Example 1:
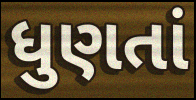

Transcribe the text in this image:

ધુણતાં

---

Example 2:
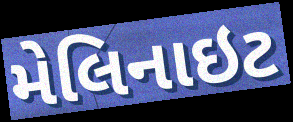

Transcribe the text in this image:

મેલિનાઇટ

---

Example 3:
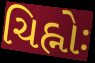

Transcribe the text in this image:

ચિહ્નોઃ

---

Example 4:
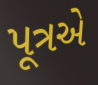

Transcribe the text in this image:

પૂત્રએ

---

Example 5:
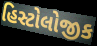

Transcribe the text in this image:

હિસ્ટોલોજીક